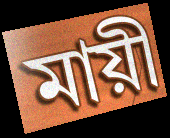
মায়ী